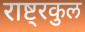
राष्ट्रकुल